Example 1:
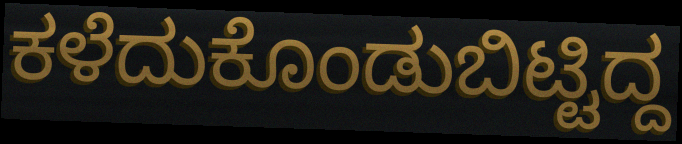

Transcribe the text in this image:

ಕಳೆದುಕೊಂಡುಬಿಟ್ಟಿದ್ದ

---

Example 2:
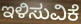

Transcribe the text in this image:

ಇಳಿಸುವಿಕೆ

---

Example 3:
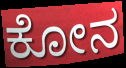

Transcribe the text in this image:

ಕೋನ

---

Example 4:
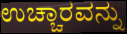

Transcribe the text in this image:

ಉಚ್ಚಾರವನ್ನು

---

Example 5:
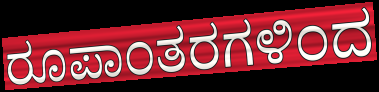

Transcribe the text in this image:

ರೂಪಾಂತರಗಳಿಂದ